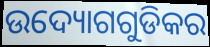
ଉଦ୍ୟୋଗଗୁଡିକର